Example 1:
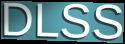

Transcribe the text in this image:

DLSS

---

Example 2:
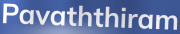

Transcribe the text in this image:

Pavaththiram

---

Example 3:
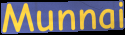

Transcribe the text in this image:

Munnai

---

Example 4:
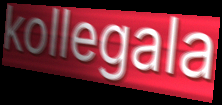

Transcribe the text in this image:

kollegala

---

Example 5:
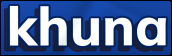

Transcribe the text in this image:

khuna